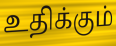
உதிக்கும்